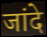
जांदे